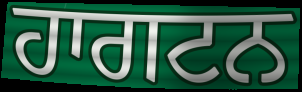
ਹਾਗਟਨ